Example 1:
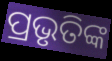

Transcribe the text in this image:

ପ୍ରଭୃତିଙ୍କ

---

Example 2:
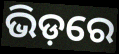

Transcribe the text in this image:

ଭିଡ଼ରେ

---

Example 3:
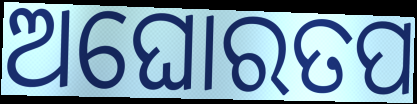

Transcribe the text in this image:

ଅଘୋରତପ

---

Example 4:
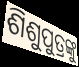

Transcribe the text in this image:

ଶିଶୁପୁତ୍ରଙ୍କୁ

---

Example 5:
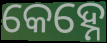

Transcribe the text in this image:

କେହ୍ନେ